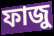
ফাজু